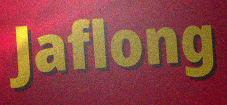
Jaflong